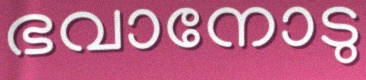
ഭവാനോടു